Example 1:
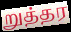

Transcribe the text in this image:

றுத்தர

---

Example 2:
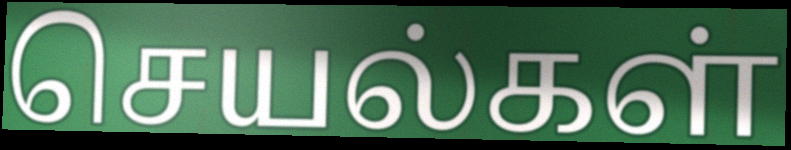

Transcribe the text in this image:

செயல்கள்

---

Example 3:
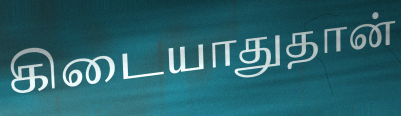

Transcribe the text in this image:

கிடையாதுதான்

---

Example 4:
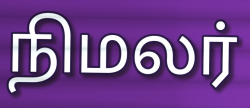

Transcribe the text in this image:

நிமலர்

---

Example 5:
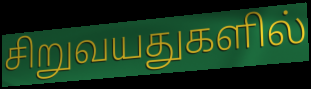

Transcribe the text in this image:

சிறுவயதுகளில்